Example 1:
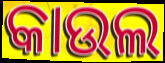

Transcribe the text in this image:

କାଉଲ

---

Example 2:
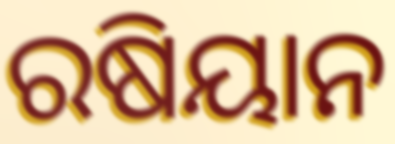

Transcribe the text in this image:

ରଷିୟାନ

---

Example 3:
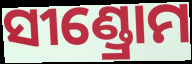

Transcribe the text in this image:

ସୀଣ୍ଡ୍ରୋମ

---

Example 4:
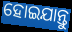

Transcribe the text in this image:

ହୋଇଯାନ୍ତୁ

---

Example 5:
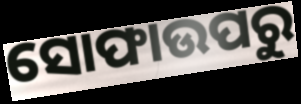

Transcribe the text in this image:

ସୋଫାଉପରୁ